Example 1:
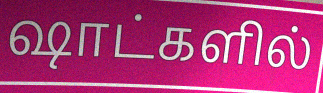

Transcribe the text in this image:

ஷாட்களில்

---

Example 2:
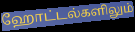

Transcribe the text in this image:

ஹோட்டல்களிலும்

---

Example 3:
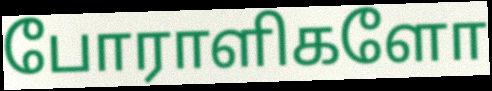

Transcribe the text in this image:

போராளிகளோ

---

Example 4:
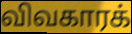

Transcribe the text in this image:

விவகாரக்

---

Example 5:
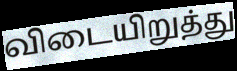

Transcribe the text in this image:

விடையிறுத்து